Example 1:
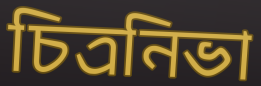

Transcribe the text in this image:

চিত্রনিভা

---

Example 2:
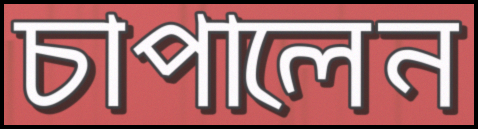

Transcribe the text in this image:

চাপালেন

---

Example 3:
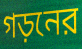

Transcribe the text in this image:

গড়নের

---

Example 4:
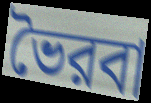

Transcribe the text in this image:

ভৈরবা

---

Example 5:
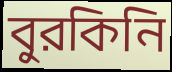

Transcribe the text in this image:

বুরকিনি